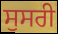
ਸੁਸਰੀ